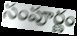
సంపూర్ణం